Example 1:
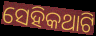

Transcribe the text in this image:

ସେହିକଥାଟି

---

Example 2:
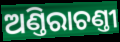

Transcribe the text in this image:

ଅଣ୍ତିରାଚଣ୍ତୀ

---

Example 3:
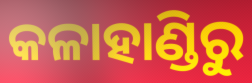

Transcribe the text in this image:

କଳାହାଣ୍ଡିରୁ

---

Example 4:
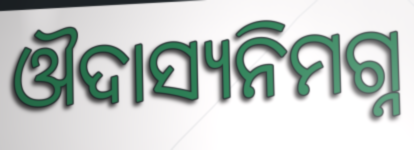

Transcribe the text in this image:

ଔଦାସ୍ୟନିମଗ୍ନ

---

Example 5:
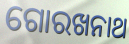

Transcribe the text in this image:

ଗୋରଖନାଥ